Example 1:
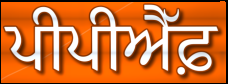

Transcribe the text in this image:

ਪੀਪੀਐੱਫ਼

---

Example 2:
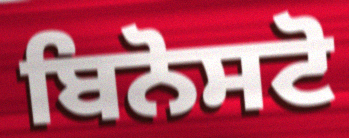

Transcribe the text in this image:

ਬਿਨੋਸਟੋ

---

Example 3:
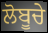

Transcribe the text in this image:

ਲੋਬੂਚੇ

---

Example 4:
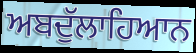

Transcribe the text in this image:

ਅਬਦੁੱਲਾਹਿਆਨ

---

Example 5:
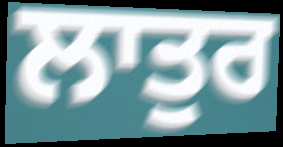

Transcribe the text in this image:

ਲਾਤੁਰ